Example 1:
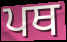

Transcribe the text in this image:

ਪਥ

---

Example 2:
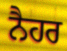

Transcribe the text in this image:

ਨੈਹਰ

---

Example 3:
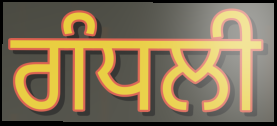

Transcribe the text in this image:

ਗੰਧਲੀ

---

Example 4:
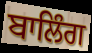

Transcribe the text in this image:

ਬਾਲਿੰਗ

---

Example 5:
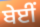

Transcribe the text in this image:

ਬੇਈਂ